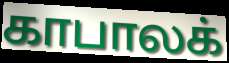
காபாலக்